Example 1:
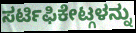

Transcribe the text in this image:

ಸರ್ಟಿಫಿಕೇಟ್ಗಳನ್ನು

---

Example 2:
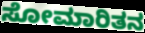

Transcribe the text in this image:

ಸೋಮಾರಿತನ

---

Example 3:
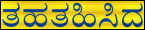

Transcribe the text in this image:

ತಹತಹಿಸಿದ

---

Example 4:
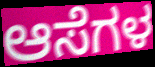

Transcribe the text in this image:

ಆಸೆಗಳ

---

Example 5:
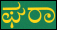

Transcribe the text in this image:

ಘರಾ